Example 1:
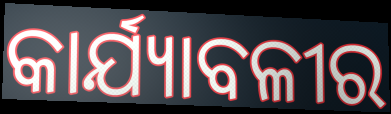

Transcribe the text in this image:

କାର୍ଯ୍ୟାବଳୀର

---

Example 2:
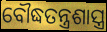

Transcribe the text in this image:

ବୌଦ୍ଧତନ୍ତ୍ରଶାସ୍ତ୍ର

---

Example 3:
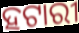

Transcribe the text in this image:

ହଟାରୀ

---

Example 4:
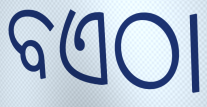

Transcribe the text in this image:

ବଏଠା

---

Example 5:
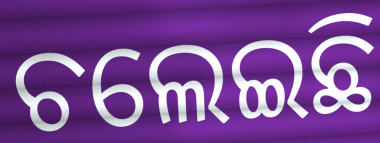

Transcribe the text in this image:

ଚଲେଇଛି